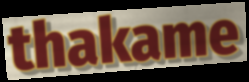
thakame